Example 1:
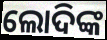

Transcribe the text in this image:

ଲୋଦିଙ୍କ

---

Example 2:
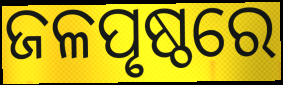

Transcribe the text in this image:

ଜଳପୃଷ୍ଠରେ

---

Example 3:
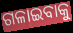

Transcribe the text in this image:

ଗଳାଇବାକୁ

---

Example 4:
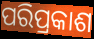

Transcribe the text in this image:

ପରିପ୍ରକାଶ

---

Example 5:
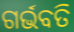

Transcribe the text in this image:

ଗର୍ଭବତି